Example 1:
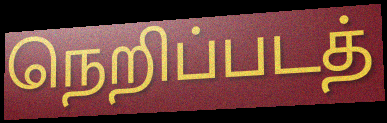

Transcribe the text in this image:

நெறிப்படத்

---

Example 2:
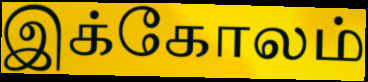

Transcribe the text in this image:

இக்கோலம்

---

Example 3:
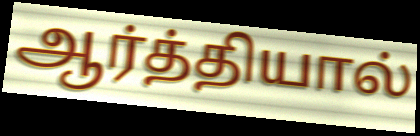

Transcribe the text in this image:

ஆர்த்தியால்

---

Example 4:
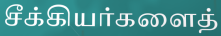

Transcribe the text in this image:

சீக்கியர்களைத்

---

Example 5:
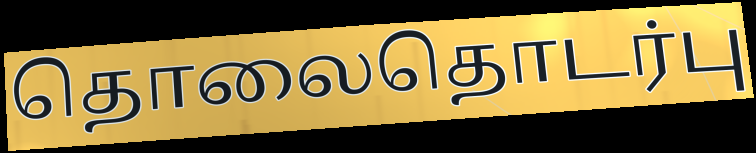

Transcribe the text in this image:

தொலைதொடர்பு